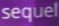
sequel